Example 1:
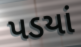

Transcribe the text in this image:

પડયાં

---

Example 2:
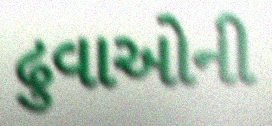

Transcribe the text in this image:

ઢુવાઓની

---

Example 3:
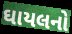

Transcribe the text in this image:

ઘાયલનો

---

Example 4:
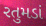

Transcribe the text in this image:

રતુમડાં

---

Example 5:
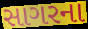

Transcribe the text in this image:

સાગરના